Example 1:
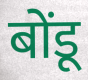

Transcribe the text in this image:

बोंडू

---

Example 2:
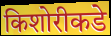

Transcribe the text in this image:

किशोरीकडे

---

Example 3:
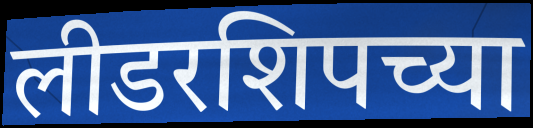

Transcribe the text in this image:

लीडरशिपच्या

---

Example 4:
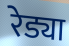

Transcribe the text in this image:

रेड्या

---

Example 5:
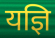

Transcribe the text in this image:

यज्ञि